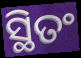
ସ୍ଥିତଂ